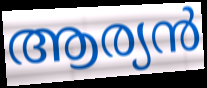
ആര്യൻ